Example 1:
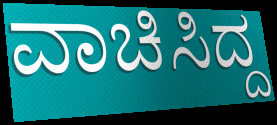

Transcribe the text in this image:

ವಾಚಿಸಿದ್ದ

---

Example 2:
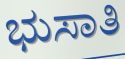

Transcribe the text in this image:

ಭುಸಾತಿ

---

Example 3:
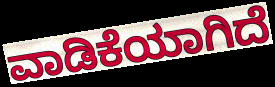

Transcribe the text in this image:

ವಾಡಿಕೆಯಾಗಿದೆ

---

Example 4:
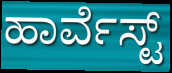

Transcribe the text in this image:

ಹಾರ್ವೆಸ್ಟ್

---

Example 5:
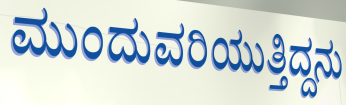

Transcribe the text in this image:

ಮುಂದುವರಿಯುತ್ತಿದ್ದನು